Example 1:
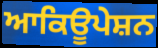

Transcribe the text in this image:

ਆਕਿਊਪੇਸ਼ਨ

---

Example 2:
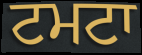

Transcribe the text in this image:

ਟਮਟਾ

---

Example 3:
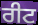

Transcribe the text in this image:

ਰੀਟ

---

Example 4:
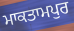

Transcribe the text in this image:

ਮਾਕਤਾਮਪੁਰ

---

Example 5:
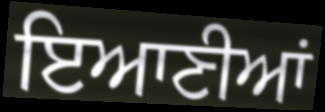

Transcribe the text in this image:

ਇਆਣੀਆਂ